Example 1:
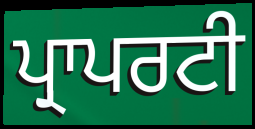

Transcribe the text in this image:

ਪ੍ਰਾਪਰਟੀ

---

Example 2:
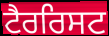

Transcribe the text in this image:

ਟੈਰਰਿਸਟ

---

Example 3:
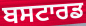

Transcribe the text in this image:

ਬਸਟਾਰਡ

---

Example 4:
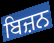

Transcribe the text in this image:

ਬਿਜ਼ਨ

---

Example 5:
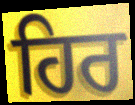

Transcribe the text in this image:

ਹਿਰ